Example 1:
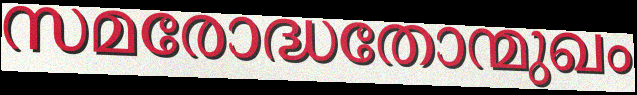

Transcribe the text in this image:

സമരോദ്ധതോന്മുഖം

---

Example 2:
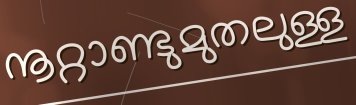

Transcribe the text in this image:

നൂറ്റാണ്ടുമുതലുള്ള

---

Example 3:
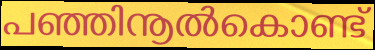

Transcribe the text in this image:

പഞ്ഞിനൂൽകൊണ്ട്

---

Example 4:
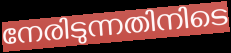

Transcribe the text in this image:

നേരിടുന്നതിനിടെ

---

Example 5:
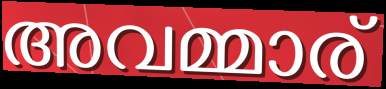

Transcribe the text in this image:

അവമ്മാര്